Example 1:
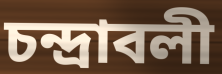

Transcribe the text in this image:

চন্দ্রাবলী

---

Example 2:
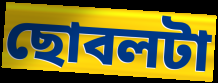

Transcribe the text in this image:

ছোবলটা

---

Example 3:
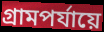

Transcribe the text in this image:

গ্রামপর্যায়ে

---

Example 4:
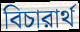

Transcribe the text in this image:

বিচারার্থ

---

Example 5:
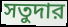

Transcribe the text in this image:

সতুদার